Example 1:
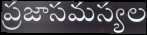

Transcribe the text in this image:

ప్రజాసమస్యల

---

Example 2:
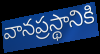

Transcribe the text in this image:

వానప్రస్థానికి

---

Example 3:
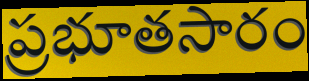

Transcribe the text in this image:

ప్రభూతసారం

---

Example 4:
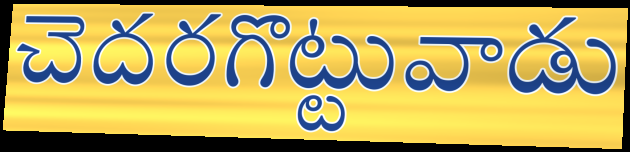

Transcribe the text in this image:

చెదరగొట్టువాడు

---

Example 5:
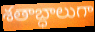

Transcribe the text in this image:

శతాబ్ధాలుగా